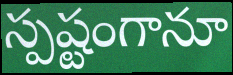
స్పష్టంగానూ